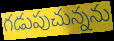
గడుపుచున్నను